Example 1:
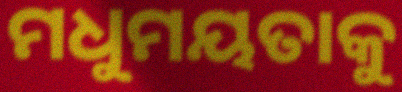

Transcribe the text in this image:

ମଧୁମୟତାକୁ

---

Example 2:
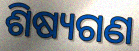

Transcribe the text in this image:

ଶିଷ୍ୟଗଣ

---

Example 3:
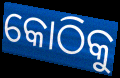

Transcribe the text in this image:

କୋଠିକୁ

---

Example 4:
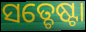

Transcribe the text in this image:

ସତ୍ଚେଷ୍ଟା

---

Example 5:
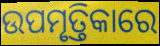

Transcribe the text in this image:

ଉପମୃତ୍ତିକାରେ